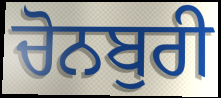
ਚੋਨਬੁਰੀ